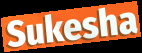
Sukesha